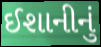
ઈશાનીનું